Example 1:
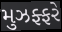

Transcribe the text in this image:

મુઝફ્ફરે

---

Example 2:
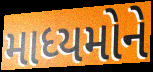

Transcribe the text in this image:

માધ્યમોને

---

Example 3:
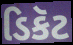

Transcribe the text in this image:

ડિકૅટ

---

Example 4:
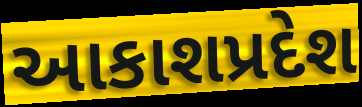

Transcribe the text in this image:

આકાશપ્રદેશ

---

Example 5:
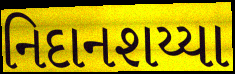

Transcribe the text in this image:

નિદાનશય્યા